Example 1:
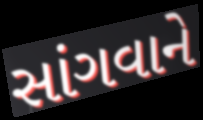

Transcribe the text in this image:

સાંગવાને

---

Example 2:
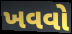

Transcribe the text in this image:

ખવવો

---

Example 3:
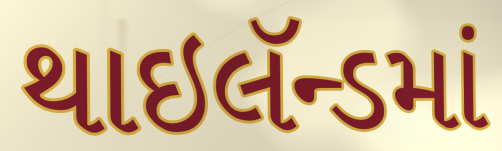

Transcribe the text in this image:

થાઇલૅન્ડમાં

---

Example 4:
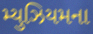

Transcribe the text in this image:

મ્યુઝિયમના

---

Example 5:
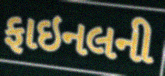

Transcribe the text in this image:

ફાઇનલની